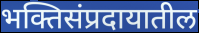
भक्तिसंप्रदायातील